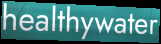
healthywater